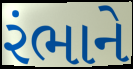
રંભાને